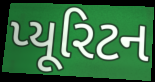
પ્યૂરિટન